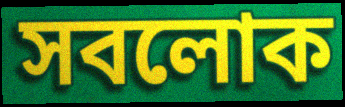
সবলোক